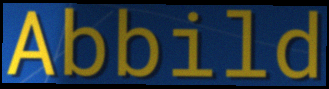
Abbild